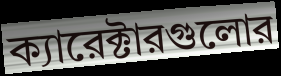
ক্যারেক্টারগুলোর